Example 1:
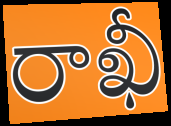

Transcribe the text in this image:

రాఖీ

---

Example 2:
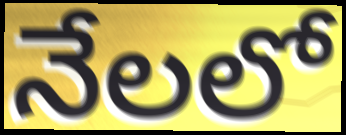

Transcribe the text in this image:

నేలలో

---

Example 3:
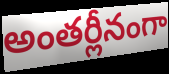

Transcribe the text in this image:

అంతర్లీనంగా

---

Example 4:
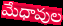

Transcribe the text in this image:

మేధావుల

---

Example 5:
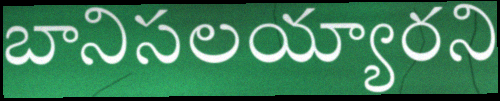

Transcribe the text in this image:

బానిసలయ్యారని